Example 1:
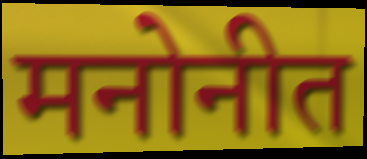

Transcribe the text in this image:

मनोनीत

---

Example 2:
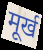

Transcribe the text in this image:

मूर्ख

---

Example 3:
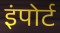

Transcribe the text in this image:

इंपोर्ट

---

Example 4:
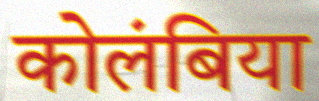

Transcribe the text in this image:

कोलंबिया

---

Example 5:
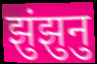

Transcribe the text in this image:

झुंझुनु